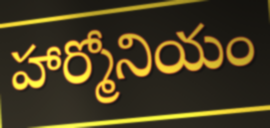
హార్మోనియం